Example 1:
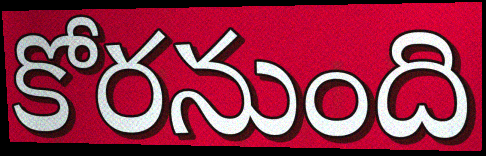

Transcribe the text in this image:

కోరనుంది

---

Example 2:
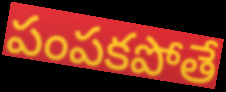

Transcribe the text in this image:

పంపకపోతే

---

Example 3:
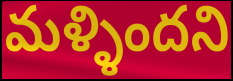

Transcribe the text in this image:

మళ్ళిందని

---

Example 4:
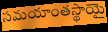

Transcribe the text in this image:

సమయాంతస్థాయై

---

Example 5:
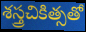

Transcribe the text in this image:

శస్త్రచికిత్సతో